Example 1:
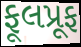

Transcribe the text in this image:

ફૂલપ્રૂફ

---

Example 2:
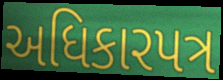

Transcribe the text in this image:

અધિકારપત્ર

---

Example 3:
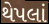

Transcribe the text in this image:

થેપલાં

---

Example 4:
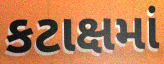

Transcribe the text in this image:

કટાક્ષમાં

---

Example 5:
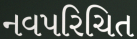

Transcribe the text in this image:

નવપરિચિત